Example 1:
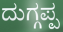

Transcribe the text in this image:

ದುಗ್ಗಪ್ಪ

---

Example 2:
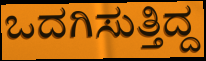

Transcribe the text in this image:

ಒದಗಿಸುತ್ತಿದ್ದ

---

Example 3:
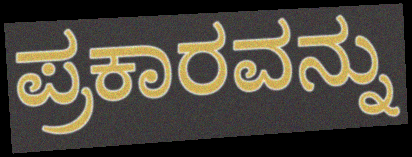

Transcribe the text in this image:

ಪ್ರಕಾರವನ್ನು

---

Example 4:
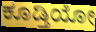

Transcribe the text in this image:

ಕೂಡ್ತಿಯೋ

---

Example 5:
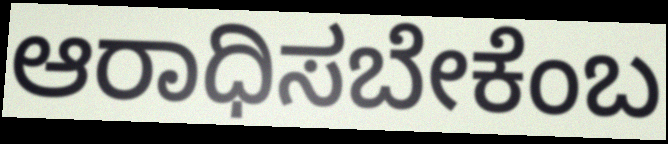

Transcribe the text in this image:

ಆರಾಧಿಸಬೇಕೆಂಬ